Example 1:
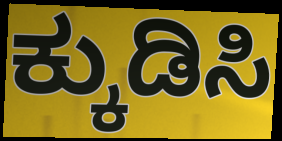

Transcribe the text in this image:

ಕ್ಕುಡಿಸಿ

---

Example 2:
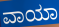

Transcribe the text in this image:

ವಾಯಾ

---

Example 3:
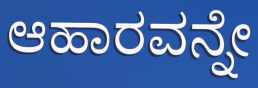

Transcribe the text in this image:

ಆಹಾರವನ್ನೇ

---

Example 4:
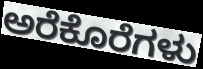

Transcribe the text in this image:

ಅರೆಕೊರೆಗಳು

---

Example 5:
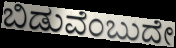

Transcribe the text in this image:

ಬಿಡುವೆಂಬುದೇ